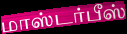
மாஸ்டர்பீஸ்